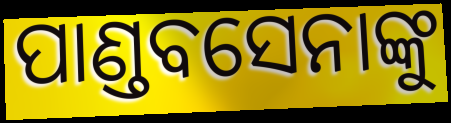
ପାଣ୍ଡବସେନାଙ୍କୁ